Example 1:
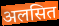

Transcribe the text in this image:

अलसित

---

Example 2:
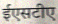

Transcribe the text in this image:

ईएसटीए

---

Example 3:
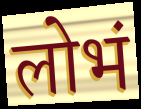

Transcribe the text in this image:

लोभं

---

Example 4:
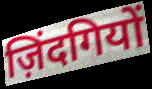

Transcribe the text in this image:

ज़िंदगियों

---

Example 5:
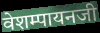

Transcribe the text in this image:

वेशम्पायनजी